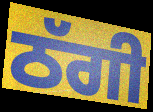
ਠੱਗੀ